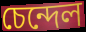
চেন্দেল